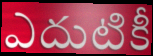
ఎదుటికీ